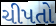
ચીપતો